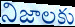
నిజాలకు